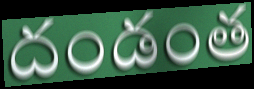
దండంత